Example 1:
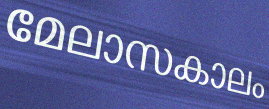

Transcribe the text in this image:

മേലാസകാലം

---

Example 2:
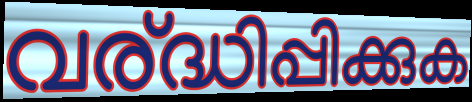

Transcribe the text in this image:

വര്ദ്ധിപ്പിക്കുക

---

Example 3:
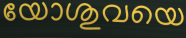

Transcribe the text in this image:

യോശുവയെ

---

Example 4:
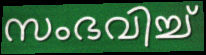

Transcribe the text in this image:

സംഭവിച്ച്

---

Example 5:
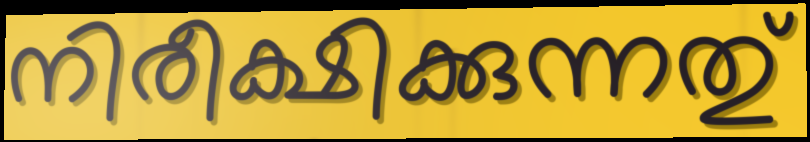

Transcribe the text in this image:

നിരീക്ഷിക്കുന്നതു്